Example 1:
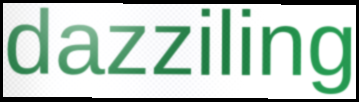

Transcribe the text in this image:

dazziling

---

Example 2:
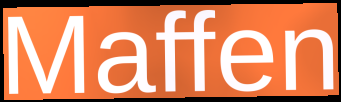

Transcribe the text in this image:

Maffen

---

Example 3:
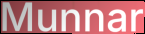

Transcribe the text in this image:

Munnar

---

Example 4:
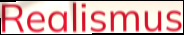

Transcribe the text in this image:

Realismus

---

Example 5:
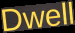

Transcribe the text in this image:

Dwell